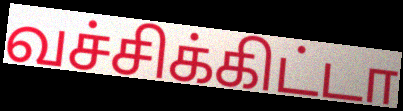
வச்சிக்கிட்டா